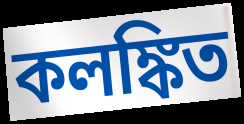
কলঙ্কিত